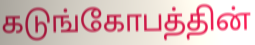
கடுங்கோபத்தின்